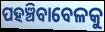
ପହଞ୍ଚିବାବେଳକୁ